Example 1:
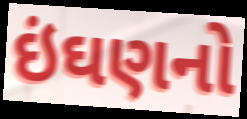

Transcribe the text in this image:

ઇંઘણનો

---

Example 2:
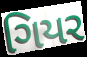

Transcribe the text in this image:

ગિયર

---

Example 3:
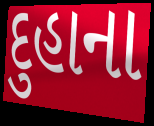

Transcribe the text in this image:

દુહાના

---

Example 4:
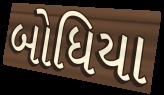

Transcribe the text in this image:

બોધિયા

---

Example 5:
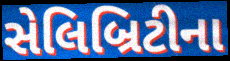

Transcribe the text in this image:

સેલિબ્રિટીના